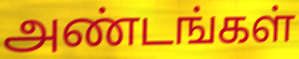
அண்டங்கள்